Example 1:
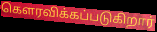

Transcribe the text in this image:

கௌரவிக்கப்படுகிறார்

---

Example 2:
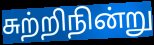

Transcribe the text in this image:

சுற்றிநின்று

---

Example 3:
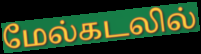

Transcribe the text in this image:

மேல்கடலில்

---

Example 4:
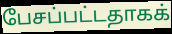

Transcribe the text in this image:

பேசப்பட்டதாகக்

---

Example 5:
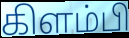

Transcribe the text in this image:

கிளம்பி